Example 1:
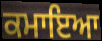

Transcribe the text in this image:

ਕਮਾਇਆ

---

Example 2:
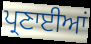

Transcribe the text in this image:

ਪ੍ਰਣਾਈਆਂ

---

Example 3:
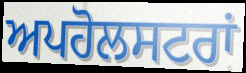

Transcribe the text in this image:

ਅਪਹੋਲਸਟਰਾਂ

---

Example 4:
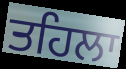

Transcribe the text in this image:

ਤਹਿਲਾ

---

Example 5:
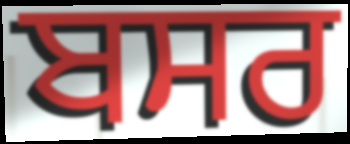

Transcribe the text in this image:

ਬਸਰ